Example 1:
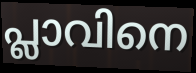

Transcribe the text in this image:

പ്ലാവിനെ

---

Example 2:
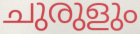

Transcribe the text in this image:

ചുരുളും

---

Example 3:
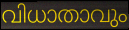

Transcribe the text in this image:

വിധാതാവും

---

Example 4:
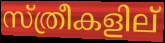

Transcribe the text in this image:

സ്ത്രീകളില്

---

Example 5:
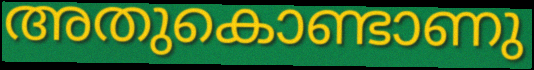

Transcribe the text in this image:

അതുകൊണ്ടാണു